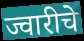
ज्वारीचे